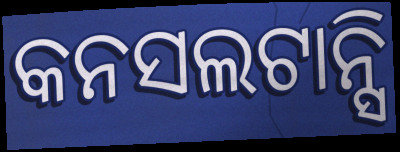
କନସଲଟାନ୍ସି